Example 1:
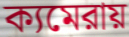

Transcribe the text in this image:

ক্যমেরায়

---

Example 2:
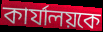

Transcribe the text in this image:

কার্যালয়কে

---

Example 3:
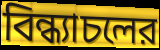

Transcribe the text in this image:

বিন্ধ্যাচলের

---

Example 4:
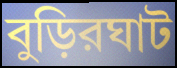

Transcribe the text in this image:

বুড়িরঘাট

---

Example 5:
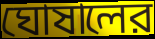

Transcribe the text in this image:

ঘোষালের